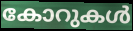
കോറുകൾ